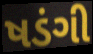
ષડંગી